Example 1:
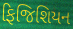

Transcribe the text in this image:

ફિજિશિયન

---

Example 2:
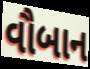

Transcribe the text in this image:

વૌબાન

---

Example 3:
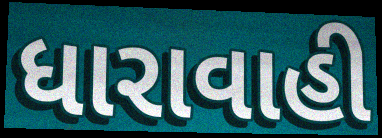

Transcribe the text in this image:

ધારાવાહી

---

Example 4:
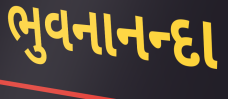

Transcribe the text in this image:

ભુવનાનન્દા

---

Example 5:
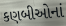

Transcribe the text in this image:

કણબીઓનાં